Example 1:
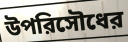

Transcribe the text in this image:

উপরিসৌধের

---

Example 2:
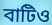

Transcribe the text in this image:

বাটিও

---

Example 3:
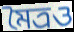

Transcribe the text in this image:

মৈত্রও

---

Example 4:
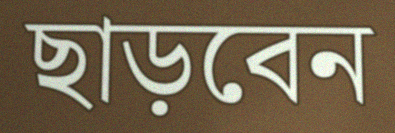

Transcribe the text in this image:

ছাড়বেন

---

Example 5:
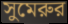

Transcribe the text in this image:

সুমেরুর